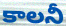
కాలనీ